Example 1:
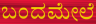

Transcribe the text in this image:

ಬಂದಮೇಲೆ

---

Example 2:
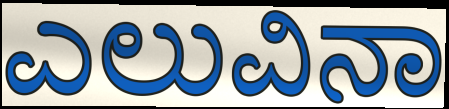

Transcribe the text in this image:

ಎಲುವಿನಾ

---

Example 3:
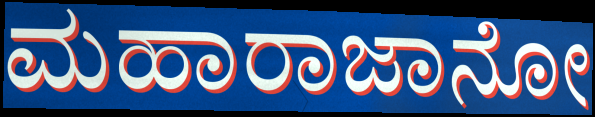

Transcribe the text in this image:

ಮಹಾರಾಜಾನೋ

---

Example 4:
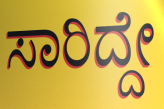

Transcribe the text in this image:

ಸಾರಿದ್ದೇ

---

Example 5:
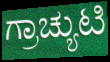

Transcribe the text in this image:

ಗ್ರಾಚ್ಯುಟಿ